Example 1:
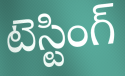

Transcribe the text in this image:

టెస్టింగ్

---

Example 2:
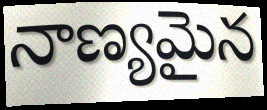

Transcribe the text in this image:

నాణ్యమైన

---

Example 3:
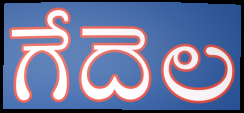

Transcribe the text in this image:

గేదెల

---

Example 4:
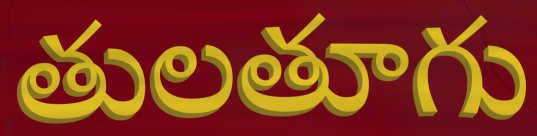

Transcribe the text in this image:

తులతూగు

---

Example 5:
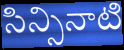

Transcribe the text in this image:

సిన్సినాటి